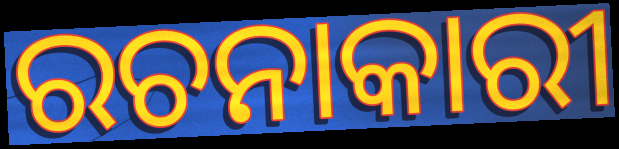
ରଚନାକାରୀ